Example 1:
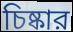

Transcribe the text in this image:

চিষ্কার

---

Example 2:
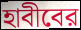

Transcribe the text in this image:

হাবীবের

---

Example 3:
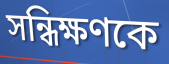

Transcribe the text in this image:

সন্ধিক্ষণকে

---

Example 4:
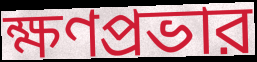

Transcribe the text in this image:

ক্ষণপ্রভার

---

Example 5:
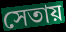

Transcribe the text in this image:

সেতায়